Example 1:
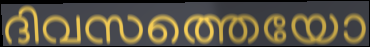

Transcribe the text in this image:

ദിവസത്തെയോ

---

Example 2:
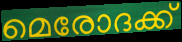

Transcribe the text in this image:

മെരോദക്ക്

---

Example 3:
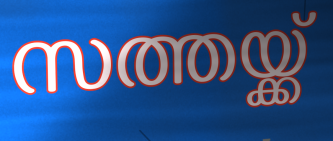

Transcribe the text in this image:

സത്തയ്ക്ക്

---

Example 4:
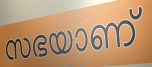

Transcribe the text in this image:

സഭയാണ്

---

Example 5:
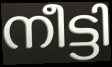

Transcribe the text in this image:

നീട്ടി